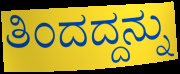
ತಿಂದದ್ದನ್ನು